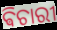
ଵିଚାରୀ